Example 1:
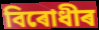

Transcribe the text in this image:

বিৰোধীৰ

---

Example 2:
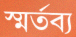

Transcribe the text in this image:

স্মৰ্তব্য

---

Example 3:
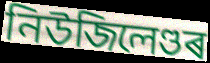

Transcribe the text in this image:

নিউজিলেণ্ডৰ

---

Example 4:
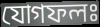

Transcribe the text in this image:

যোগফলঃ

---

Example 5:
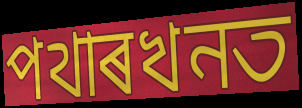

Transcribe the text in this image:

পথাৰখনত